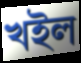
খইল